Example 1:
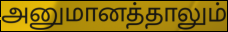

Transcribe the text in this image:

அனுமானத்தாலும்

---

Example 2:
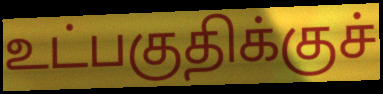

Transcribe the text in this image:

உட்பகுதிக்குச்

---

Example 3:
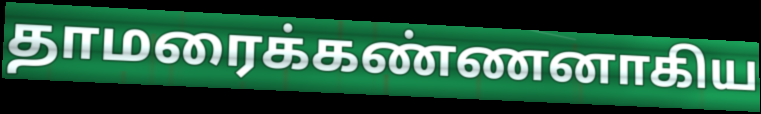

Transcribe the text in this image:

தாமரைக்கண்ணனாகிய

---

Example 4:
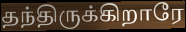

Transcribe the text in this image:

தந்திருக்கிறாரே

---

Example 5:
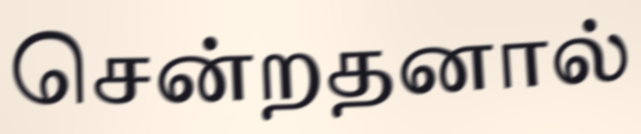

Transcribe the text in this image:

சென்றதனால்